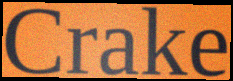
Crake